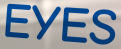
EYES